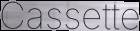
Cassette